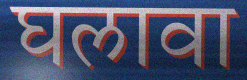
घलावा